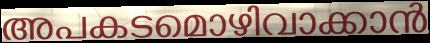
അപകടമൊഴിവാക്കാൻ